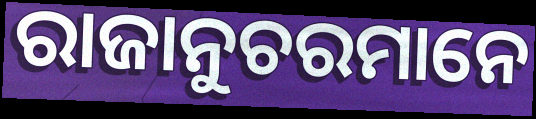
ରାଜାନୁଚରମାନେ